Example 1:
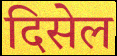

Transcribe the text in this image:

दिसेल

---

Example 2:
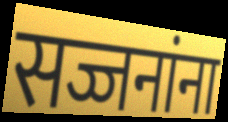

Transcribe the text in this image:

सज्जनांना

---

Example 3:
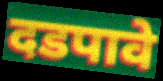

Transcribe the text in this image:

दडपावे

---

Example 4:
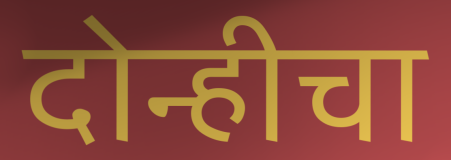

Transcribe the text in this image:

दोन्हीचा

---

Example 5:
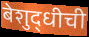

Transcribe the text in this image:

बेशुद्धीची